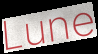
Lune